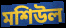
মশিউল